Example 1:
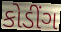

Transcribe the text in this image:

કોડીંગ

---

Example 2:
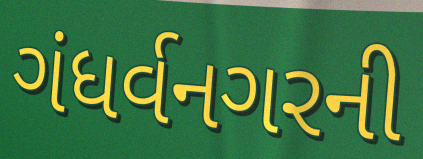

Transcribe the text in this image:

ગંધર્વનગરની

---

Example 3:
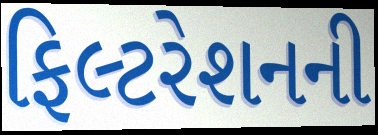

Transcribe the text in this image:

ફિલ્ટરેશનની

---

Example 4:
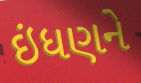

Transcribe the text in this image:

ઇંધણને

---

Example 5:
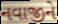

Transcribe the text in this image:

નવાજીને